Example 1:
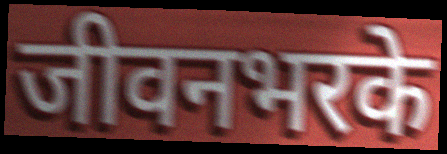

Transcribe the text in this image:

जीवनभरके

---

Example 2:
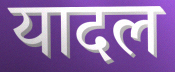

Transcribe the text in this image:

यादल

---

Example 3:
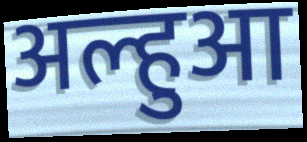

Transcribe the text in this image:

अल्हुआ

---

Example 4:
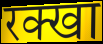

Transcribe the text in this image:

रक्खा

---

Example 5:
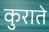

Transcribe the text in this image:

कुराते